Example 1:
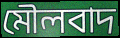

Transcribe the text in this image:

মৌলবাদ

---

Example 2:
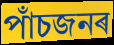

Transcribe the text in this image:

পাঁচজনৰ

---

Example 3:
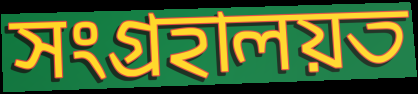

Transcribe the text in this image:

সংগ্ৰহালয়ত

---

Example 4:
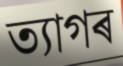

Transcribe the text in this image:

ত্যাগৰ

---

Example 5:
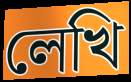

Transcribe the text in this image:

লেখি